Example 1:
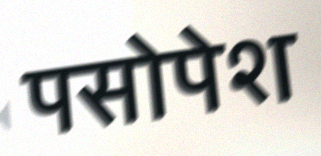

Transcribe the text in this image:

पसोपेश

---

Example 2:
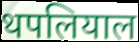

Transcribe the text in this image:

थपलियाल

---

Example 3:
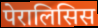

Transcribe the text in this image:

पेरालिसिस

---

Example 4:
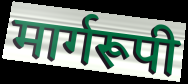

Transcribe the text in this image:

मार्गरूपी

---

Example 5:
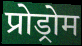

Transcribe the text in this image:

प्रोड्रोम